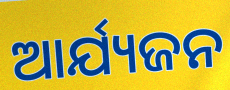
ଆର୍ଯ୍ୟଜନ